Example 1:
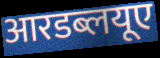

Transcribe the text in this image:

आरडब्लयूए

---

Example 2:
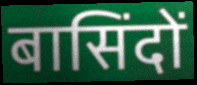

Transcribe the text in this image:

बासिंदों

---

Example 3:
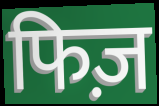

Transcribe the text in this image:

फिज़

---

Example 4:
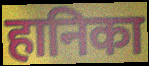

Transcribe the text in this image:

हानिका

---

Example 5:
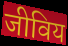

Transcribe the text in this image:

जीविय